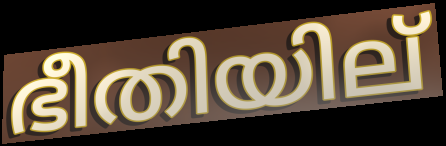
ഭീതിയില്